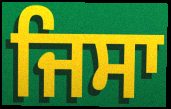
ਜਿਸਾ